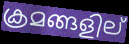
ക്രമങ്ങളില്